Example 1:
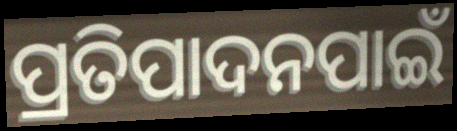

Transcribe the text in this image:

ପ୍ରତିପାଦନପାଇଁ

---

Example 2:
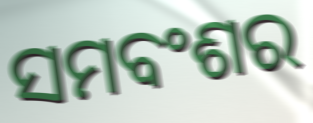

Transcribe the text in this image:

ସମବଂଶର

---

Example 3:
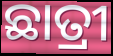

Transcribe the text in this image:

ଛାତ୍ରୀ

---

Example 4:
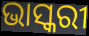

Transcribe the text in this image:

ଭାସ୍କରୀ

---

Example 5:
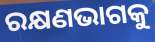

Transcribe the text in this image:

ରକ୍ଷଣଭାଗକୁ